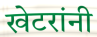
खेटरांनी